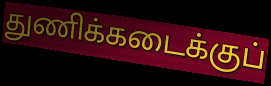
துணிக்கடைக்குப்